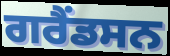
ਗਰੈਂਡਸਨ